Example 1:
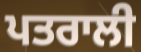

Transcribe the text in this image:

ਪਤਰਾਲੀ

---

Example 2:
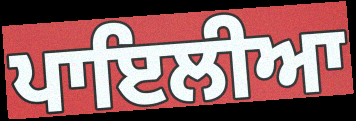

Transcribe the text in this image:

ਪਾਇਲੀਆ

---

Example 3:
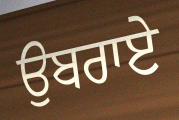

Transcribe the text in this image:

ਉਬਰਾਏ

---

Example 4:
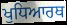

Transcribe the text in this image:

ਖੁਧਿਆਰਥ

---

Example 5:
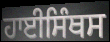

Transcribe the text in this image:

ਹਾਈਸਿੰਥਸ